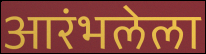
आरंभलेला